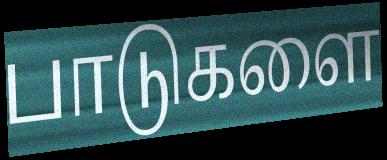
பாடுகளை